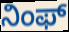
ನಿಂಫ್